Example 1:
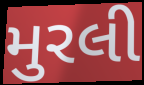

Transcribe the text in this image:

મુરલી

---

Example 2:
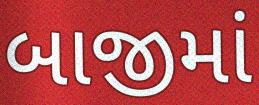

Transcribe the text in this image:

બાજીમાં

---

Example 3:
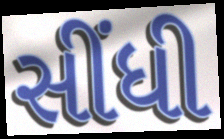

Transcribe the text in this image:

સીંધી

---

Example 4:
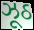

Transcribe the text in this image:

ઝૂઠ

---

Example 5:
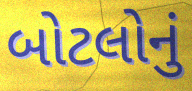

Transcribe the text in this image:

બોટલોનું